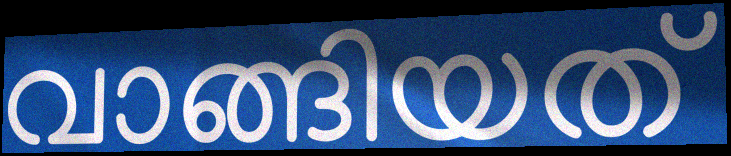
വാങ്ങിയത്